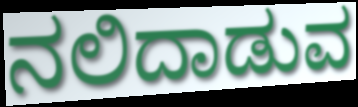
ನಲಿದಾಡುವ